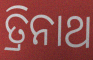
ତ୍ରିନାଥ